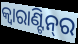
କ୍ବାରାଣ୍ଟିନ୍‌ର